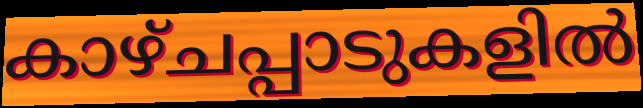
കാഴ്ചപ്പാടുകളിൽ